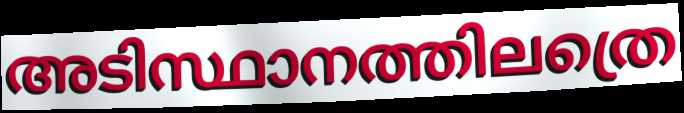
അടിസ്ഥാനത്തിലത്രെ